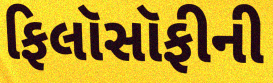
ફિલૉસૉફીની